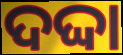
ଦଦ୍ଦା